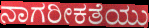
ನಾಗರೀಕತೆಯು